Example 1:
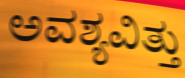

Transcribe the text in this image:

ಅವಶ್ಯವಿತ್ತು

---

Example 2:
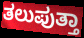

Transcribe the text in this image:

ತಲುಪುತ್ತಾ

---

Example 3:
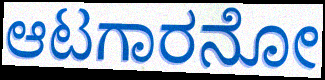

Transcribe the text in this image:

ಆಟಗಾರನೋ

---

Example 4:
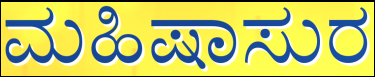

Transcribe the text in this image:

ಮಹಿಷಾಸುರ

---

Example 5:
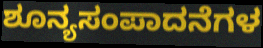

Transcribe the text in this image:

ಶೂನ್ಯಸಂಪಾದನೆಗಳ